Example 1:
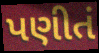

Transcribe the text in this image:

પણીતં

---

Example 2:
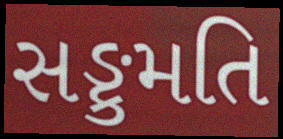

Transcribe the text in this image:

સઙ્કમતિ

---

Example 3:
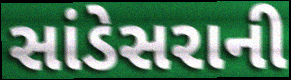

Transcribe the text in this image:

સાંડેસરાની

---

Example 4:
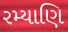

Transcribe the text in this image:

રમ્યાણિ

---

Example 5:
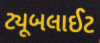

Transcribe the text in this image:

ટ્યૂબલાઈટ